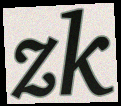
zk